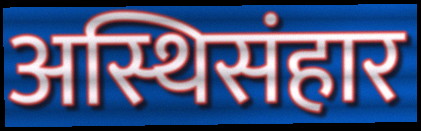
अस्थिसंहार